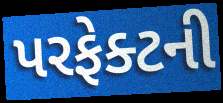
પરફેક્ટની